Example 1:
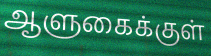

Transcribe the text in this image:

ஆளுகைக்குள்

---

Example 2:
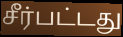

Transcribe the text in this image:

சீர்பட்டது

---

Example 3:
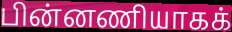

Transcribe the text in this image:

பின்னணியாகக்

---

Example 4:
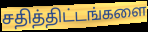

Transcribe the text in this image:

சதித்திட்டங்களை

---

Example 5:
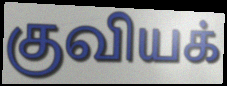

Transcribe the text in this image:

குவியக்